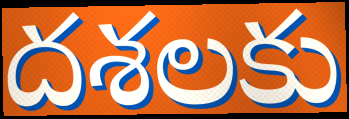
దశలకు